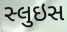
સ્લુઇસ